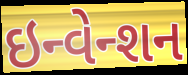
ઇન્વેન્શન